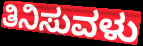
ತಿನಿಸುವಳು